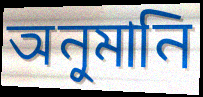
অনুমানি